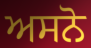
ਅਸਨੋ